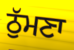
ਠੁੱਮਣਾ